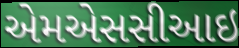
એમએસસીઆઇ